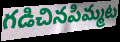
గడిచినపిమ్మట